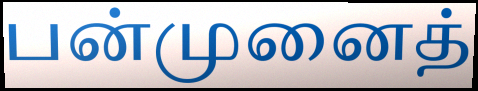
பன்முனைத்